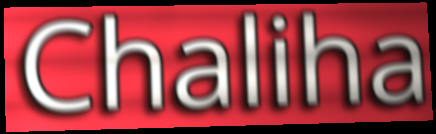
Chaliha